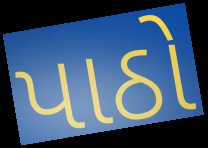
પાઠો